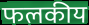
फलकीय